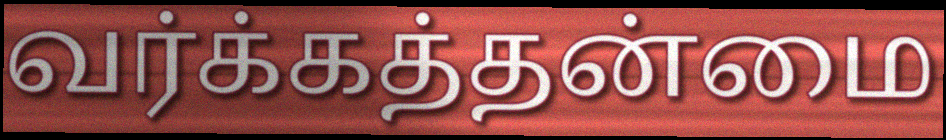
வர்க்கத்தன்மை